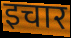
इचार